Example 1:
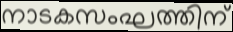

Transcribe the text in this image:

നാടകസംഘത്തിന്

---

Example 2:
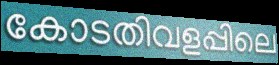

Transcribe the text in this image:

കോടതിവളപ്പിലെ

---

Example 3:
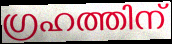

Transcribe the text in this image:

ഗ്രഹത്തിന്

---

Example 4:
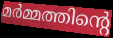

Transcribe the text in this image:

മർമ്മത്തിന്റെ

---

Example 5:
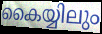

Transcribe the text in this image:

കൈയ്യിലും